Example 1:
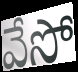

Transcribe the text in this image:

వేసో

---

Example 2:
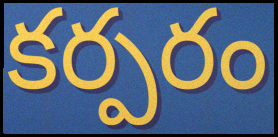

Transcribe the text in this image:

కర్పరం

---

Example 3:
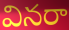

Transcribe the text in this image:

వినరా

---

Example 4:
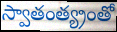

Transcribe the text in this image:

స్వాతంత్య్రంతో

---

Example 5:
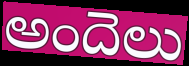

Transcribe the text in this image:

అందెలు